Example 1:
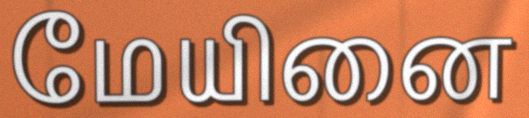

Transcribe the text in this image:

மேயினை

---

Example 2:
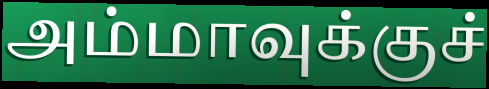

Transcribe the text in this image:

அம்மாவுக்குச்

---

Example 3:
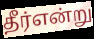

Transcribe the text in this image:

தீர்என்று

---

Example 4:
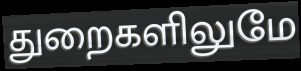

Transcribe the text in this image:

துறைகளிலுமே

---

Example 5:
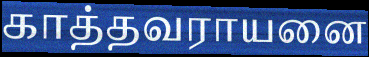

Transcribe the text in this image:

காத்தவராயனை